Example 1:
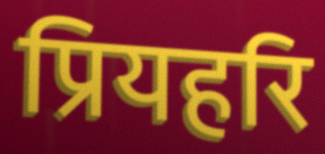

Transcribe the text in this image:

प्रियहरि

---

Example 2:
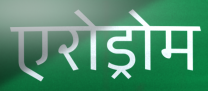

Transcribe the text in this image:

एरोड्रोम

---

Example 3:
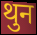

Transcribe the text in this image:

थुन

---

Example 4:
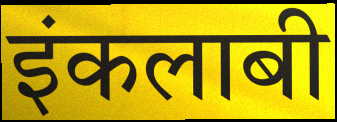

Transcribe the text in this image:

इंकलाबी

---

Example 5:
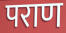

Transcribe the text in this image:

पराण